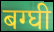
बग्घी